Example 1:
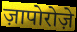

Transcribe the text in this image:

ज़ापोरोज़े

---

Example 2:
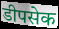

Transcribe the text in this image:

डीपसेक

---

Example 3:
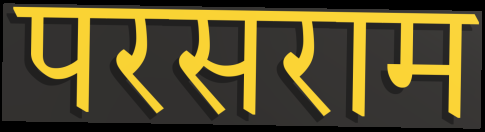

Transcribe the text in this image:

परसराम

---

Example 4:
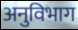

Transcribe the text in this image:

अनुविभाग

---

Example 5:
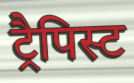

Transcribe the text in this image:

ट्रैपिस्ट